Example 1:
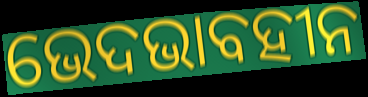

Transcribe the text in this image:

ଭେଦଭାବହୀନ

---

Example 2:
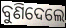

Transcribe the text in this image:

ବୁଣିଦେଲେ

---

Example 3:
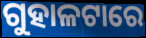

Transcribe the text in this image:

ଗୁହାଳଟାରେ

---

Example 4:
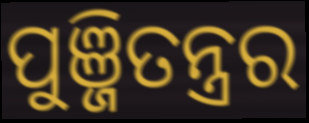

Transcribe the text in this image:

ପୁଞ୍ଜିତନ୍ତ୍ରର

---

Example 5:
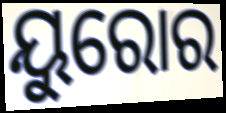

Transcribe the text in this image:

ୟୁରୋର